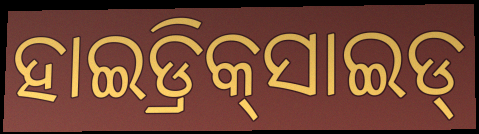
ହାଇଡ୍ରିକ୍‌ସାଇଡ୍